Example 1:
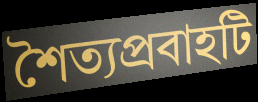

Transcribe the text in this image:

শৈত্যপ্রবাহটি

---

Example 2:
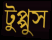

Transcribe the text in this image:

টুপ্পুস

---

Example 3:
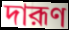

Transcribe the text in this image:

দারূণ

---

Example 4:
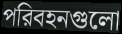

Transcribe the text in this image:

পরিবহনগুলো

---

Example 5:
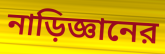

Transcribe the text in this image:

নাড়িজ্ঞানের